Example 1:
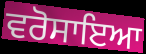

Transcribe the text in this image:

ਵਰੋਸਾਇਆ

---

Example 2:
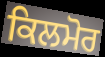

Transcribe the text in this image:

ਕਿਲਮੋਰ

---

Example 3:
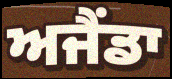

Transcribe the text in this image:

ਅਜੈਂਡਾ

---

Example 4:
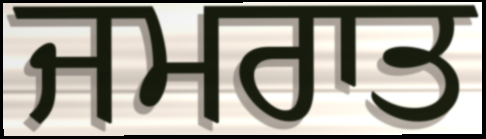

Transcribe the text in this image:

ਜਮਰਾਤ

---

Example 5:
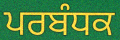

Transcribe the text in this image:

ਪਰਬੰਧਕ